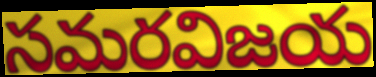
సమరవిజయ